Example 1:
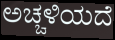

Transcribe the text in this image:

ಅಚ್ಚಳಿಯದೆ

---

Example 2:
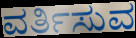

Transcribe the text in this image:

ವರ್ತಿಸುವ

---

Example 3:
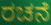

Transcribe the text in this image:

ರಚನೆ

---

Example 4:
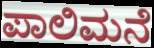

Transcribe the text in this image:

ಪಾಲಿಮನೆ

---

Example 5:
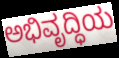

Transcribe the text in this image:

ಅಭಿವೃದ್ಧಿಯ